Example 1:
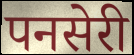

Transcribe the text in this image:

पनसेरी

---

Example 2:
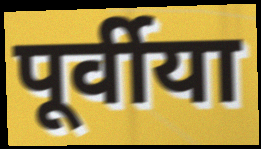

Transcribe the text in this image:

पूर्वीया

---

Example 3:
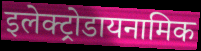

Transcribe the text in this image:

इलेक्ट्रोडायनामिक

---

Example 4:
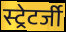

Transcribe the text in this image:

स्ट्रेटर्जी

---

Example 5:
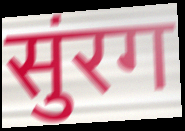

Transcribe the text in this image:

सुंरग